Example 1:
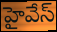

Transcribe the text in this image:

హైవేస్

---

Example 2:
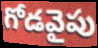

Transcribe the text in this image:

గోడవైపు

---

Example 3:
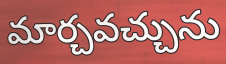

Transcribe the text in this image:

మార్చవచ్చును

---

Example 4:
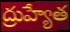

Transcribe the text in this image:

ద్రుహ్యేత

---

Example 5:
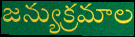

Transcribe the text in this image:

జన్యుక్రమాల